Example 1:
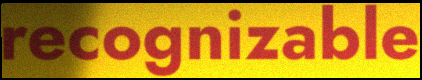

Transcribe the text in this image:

recognizable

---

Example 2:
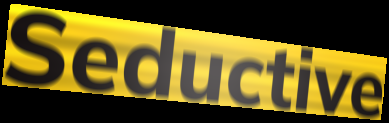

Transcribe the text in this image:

Seductive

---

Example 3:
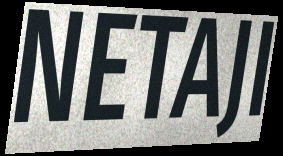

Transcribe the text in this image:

NETAJI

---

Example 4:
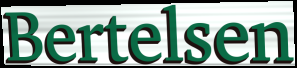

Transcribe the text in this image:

Bertelsen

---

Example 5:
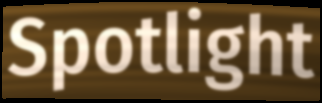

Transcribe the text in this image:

Spotlight